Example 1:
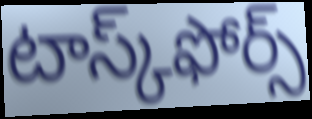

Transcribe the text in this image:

టాస్క్‌ఫోర్స్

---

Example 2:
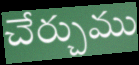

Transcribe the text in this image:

చేర్చుము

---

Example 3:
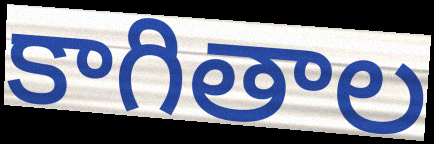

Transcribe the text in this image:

కాగితాల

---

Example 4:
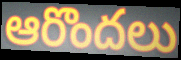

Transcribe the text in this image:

ఆరొందలు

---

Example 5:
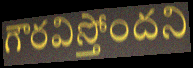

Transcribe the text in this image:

గౌరవిస్తోందని